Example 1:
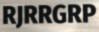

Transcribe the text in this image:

RJRRGRP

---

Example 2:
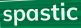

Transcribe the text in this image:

spastic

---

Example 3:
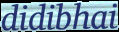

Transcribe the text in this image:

didibhai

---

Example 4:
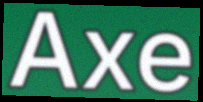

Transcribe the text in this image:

Axe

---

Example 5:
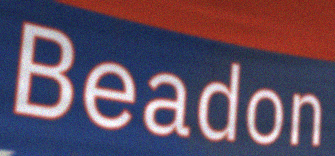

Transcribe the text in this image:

Beadon